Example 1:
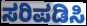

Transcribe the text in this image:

ಸರಿಪಡಿಸಿ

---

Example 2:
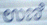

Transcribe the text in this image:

ಉಣಿ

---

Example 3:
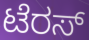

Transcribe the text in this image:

ಟೆರಸ್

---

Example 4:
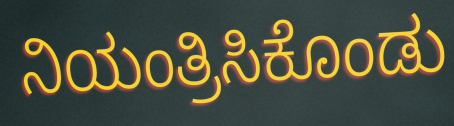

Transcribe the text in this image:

ನಿಯಂತ್ರಿಸಿಕೊಂಡು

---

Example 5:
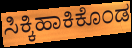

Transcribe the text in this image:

ಸಿಕ್ಕಿಹಾಕಿಕೊಂಡ